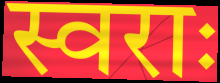
स्वराः